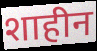
शाहीन